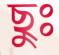
ছুঃ